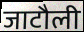
जाटौली